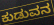
ಕುಡುವನ